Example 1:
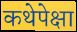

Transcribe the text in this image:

कथेपेक्षा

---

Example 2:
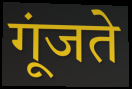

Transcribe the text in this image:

गूंजते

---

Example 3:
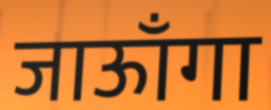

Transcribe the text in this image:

जाऊाँगा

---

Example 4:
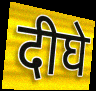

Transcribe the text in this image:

दीघे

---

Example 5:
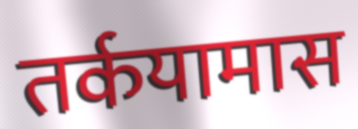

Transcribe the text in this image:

तर्कयामास